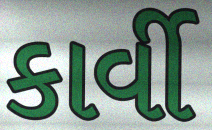
કાર્વી